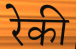
रेकी